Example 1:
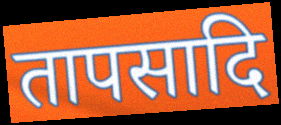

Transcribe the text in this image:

तापसादि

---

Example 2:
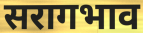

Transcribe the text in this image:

सरागभाव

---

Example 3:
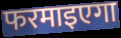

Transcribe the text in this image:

फरमाइएगा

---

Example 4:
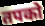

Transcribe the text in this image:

तपको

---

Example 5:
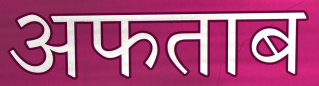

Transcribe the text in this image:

अफताब